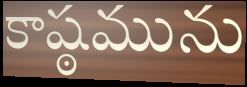
కాష్ఠమును